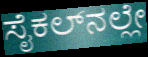
ಸೈಕಲ್‌ನಲ್ಲೇ